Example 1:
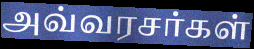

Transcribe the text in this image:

அவ்வரசர்கள்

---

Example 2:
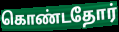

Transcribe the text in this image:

கொண்டதோர்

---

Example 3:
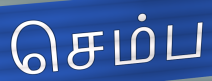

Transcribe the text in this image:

செம்ப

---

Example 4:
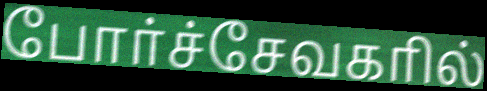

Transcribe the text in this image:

போர்ச்சேவகரில்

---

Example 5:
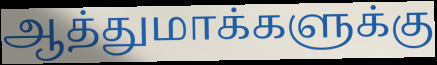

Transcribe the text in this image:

ஆத்துமாக்களுக்கு